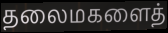
தலைமகளைத்